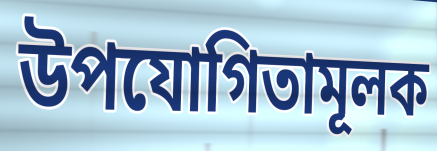
উপযোগিতামূলক